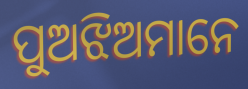
ପୁଅଝିଅମାନେ